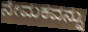
ನೇಮಕವನ್ನು